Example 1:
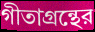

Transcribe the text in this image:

গীতাগ্রন্থের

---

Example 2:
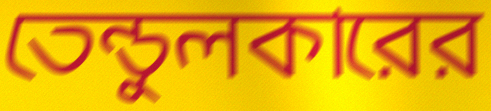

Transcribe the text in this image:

তেন্ডুলকারের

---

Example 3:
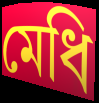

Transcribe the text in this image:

মেধি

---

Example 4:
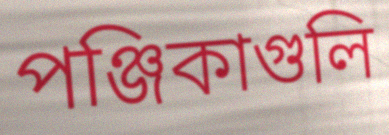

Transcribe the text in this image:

পঞ্জিকাগুলি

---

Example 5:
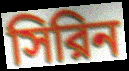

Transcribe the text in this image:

সিরিন